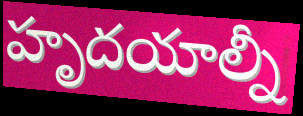
హృదయాల్నీ